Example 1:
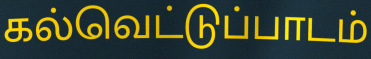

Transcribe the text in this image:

கல்வெட்டுப்பாடம்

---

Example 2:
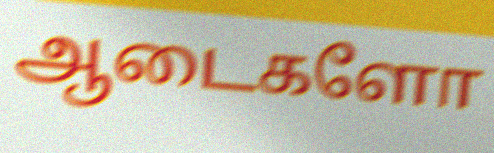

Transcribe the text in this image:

ஆடைகளோ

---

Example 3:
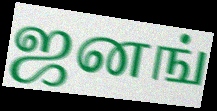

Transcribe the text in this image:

ஜனங்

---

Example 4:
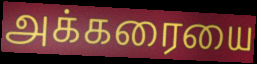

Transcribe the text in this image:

அக்கரையை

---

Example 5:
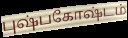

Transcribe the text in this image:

புஷ்பகோஷ்டம்